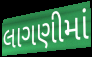
લાગણીમાં